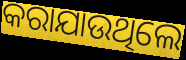
କରାଯାଉଥିଲେ